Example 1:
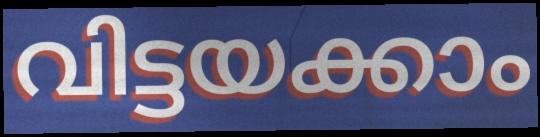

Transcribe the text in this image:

വിട്ടയക്കാം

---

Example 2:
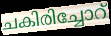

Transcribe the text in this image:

ചകിരിച്ചോറ്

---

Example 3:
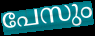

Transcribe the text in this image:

പേസും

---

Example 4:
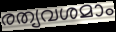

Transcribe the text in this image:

രത്യവശമാം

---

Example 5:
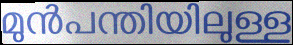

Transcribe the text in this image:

മുൻപന്തിയിലുള്ള